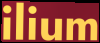
ilium